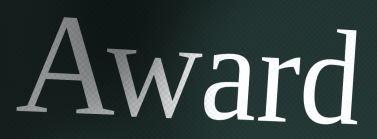
Award